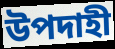
উপদাহী